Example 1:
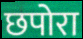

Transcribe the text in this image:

छपोरा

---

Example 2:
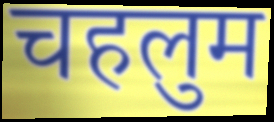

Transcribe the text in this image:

चहलुम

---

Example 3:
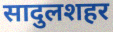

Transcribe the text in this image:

सादुलशहर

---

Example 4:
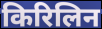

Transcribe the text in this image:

किरिलिन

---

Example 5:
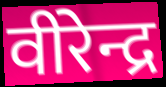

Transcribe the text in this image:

वीरेन्‍द्र